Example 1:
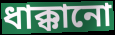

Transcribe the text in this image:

ধাক্কানো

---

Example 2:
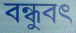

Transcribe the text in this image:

বন্ধুবৎ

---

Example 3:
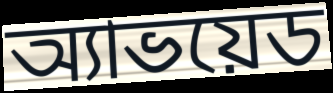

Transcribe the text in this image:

অ্যাভয়েড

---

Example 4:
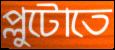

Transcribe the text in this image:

প্লুটোতে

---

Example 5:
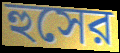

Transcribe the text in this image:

হুসের